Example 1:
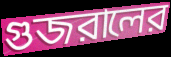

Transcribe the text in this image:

গুজরালের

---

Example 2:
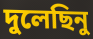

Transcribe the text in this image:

দুলেছিনু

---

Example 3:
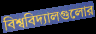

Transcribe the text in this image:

বিশ্ববিদ্যালগুলোর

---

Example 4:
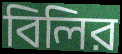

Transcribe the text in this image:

বিলির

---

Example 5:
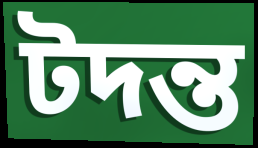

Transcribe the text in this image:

টদন্ত